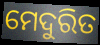
ମେଦୁରିତ